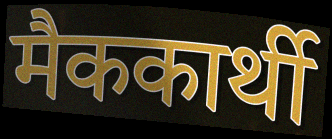
मैककार्थी